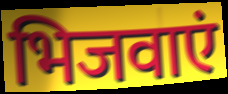
भिजवाएं